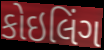
કોઇલિંગ